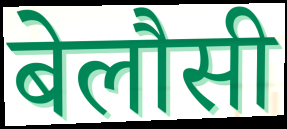
बेलौसी